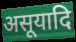
असूयादि